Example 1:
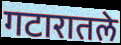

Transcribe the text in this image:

गटारातले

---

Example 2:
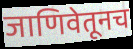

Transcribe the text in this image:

जाणिवेतूनच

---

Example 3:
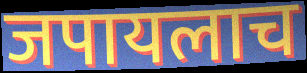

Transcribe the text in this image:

जपायलाच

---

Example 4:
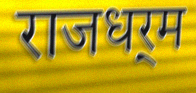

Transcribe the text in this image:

राजधर्म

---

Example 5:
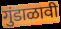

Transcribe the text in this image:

गुंडाळावी